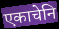
एकाचेनि